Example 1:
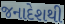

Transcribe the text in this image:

જનાદેશથી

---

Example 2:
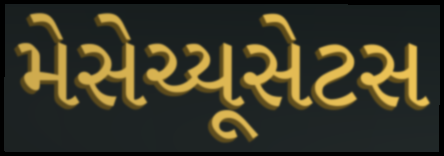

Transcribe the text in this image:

મેસેચ્યૂસેટસ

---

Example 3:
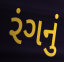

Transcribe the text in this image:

રંગનું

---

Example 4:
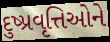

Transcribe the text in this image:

દુષ્પ્રવૃત્તિઓને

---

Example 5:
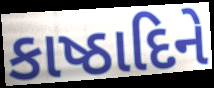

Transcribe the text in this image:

કાષ્ઠાદિને